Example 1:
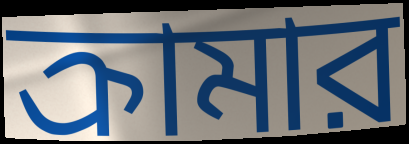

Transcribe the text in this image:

ক্রামার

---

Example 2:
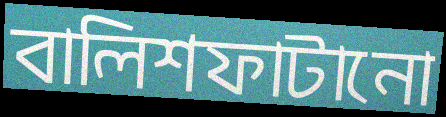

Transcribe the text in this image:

বালিশফাটানো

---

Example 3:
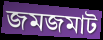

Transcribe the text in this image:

জমজমাট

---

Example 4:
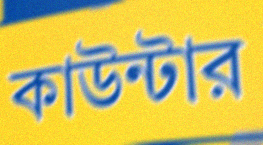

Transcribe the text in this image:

কাউন্টার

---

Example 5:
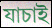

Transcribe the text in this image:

যাচাই